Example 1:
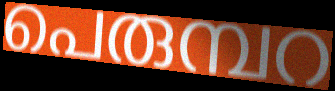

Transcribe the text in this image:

പെരുമ്പറ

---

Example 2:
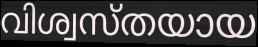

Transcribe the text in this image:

വിശ്വസ്തയായ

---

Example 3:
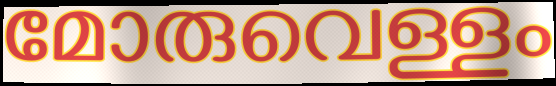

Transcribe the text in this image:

മോരുവെള്ളം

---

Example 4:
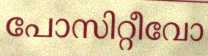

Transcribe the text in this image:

പോസിറ്റീവോ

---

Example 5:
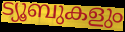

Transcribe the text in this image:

ട്യൂബുകളും